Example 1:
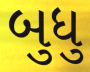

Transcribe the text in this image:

બુધુ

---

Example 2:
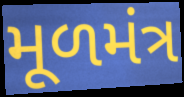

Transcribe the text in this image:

મૂળમંત્ર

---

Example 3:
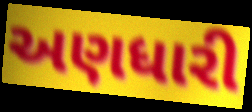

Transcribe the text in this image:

અણધારી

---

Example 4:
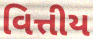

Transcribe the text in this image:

વિત્તીય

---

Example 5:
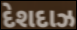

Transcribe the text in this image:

દેશદાઝ